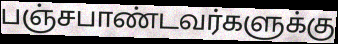
பஞ்சபாண்டவர்களுக்கு